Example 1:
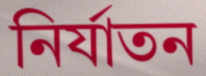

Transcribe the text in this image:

নির্যাতন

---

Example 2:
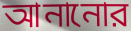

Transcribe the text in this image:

আনানোর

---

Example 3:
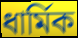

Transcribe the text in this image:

ধার্মিক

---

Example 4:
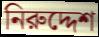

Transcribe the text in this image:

নিরুদ্দেশ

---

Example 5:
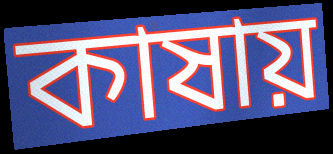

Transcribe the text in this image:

কাষায়